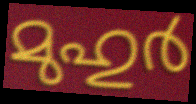
മുഹുർ